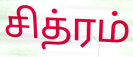
சித்ரம்